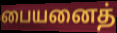
பையனைத்